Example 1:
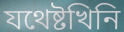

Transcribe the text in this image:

যথেষ্টখিনি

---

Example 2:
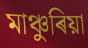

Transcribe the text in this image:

মাঞ্চুৰিয়া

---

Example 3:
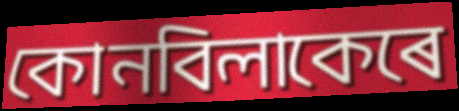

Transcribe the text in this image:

কোনবিলাকেৰে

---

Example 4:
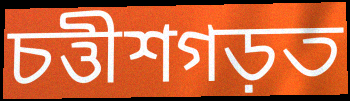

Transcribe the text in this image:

চত্তীশগড়ত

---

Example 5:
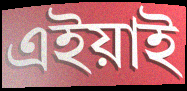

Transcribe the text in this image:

এইয়াই